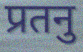
प्रतनु